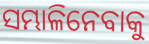
ସମ୍ଭାଳିନେବାକୁ